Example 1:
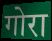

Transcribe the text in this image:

गोरा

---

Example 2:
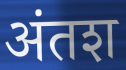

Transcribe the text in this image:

अंतश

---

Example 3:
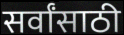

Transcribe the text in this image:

सर्वांसाठी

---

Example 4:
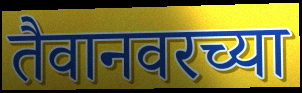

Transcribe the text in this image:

तैवानवरच्या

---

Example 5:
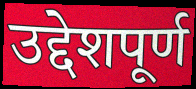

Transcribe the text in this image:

उद्देशपूर्ण